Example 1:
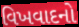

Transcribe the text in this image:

વિખવાદનો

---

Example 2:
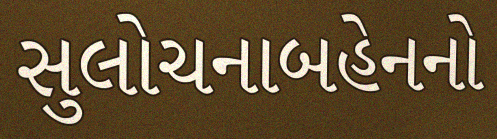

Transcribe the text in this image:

સુલોચનાબહેનનો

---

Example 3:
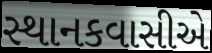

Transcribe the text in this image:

સ્થાનકવાસીએ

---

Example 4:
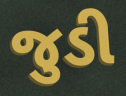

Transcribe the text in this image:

જુડી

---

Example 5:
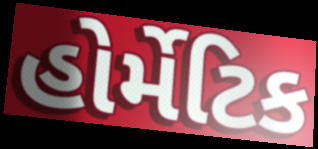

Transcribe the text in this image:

હોર્મેટિક